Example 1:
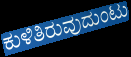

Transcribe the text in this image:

ಕುಳಿತಿರುವುದುಂಟು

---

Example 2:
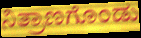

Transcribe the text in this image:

ನಿತ್ರಾಣಗೊಂಡು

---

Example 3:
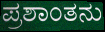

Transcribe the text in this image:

ಪ್ರಶಾಂತನು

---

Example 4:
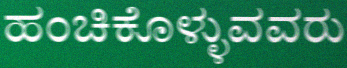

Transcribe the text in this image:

ಹಂಚಿಕೊಳ್ಳುವವರು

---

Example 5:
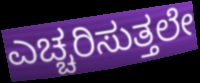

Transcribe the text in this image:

ಎಚ್ಚರಿಸುತ್ತಲೇ